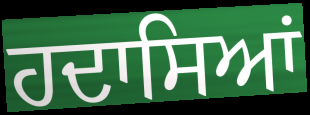
ਹਦਾਸਿਆਂ